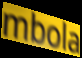
mbola